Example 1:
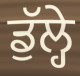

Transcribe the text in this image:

ਡੁੱਲ੍ਹੇ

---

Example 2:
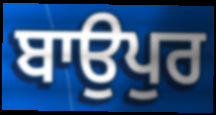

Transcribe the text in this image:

ਬਾਉਪੁਰ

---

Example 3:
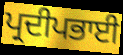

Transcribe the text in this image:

ਪ੍ਰਦੀਪਭਾਈ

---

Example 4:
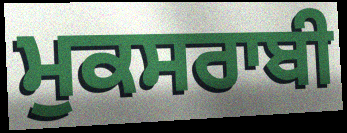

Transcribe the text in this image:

ਮੁਕਸਰਾਬੀ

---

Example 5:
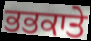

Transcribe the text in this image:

ਭਭਕਾਤੇ